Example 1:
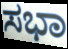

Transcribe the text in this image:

ಸಭಾ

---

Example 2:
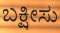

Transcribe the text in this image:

ಬಕ್ಷೀಸು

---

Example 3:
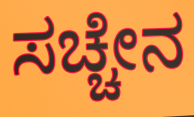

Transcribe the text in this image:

ಸಚ್ಚೇನ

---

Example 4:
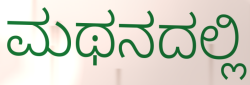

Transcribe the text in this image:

ಮಥನದಲ್ಲಿ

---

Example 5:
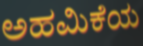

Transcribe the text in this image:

ಅಹಮಿಕೆಯ